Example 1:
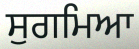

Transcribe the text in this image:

ਸੁਗਮਿਆ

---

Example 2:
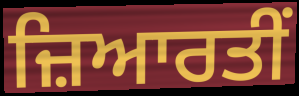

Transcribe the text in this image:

ਜ਼ਿਆਰਤੀਂ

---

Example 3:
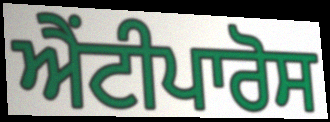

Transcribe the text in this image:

ਐਂਟੀਪਾਰੋਸ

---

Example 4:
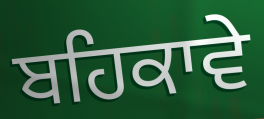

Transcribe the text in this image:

ਬਹਿਕਾਵੇ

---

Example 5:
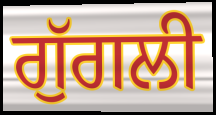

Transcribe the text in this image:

ਗੁੱਗਲੀ